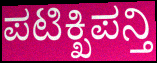
ಪಟಿಕ್ಖಿಪನ್ತಿ